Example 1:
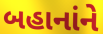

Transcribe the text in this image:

બહાનાંને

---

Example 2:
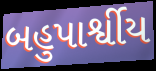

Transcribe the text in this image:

બહુપાર્શ્વીય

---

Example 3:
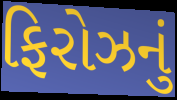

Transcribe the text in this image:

ફિરોઝનું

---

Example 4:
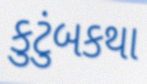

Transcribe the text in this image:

કુટુંબકથા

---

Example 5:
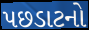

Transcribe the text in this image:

પછડાટનો